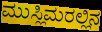
ಮುಸ್ಲಿಮರಲ್ಲಿನ